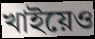
খাইয়েও